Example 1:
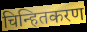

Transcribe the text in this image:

चिन्हितकरण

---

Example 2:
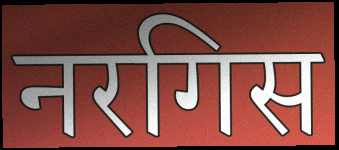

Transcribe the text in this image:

नरगिस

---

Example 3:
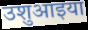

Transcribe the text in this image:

उशुआइया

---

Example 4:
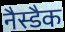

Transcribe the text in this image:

नैस्डैक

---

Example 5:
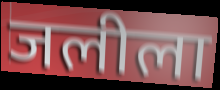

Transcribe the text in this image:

जलीला